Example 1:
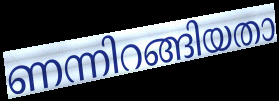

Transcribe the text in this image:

ണന്നിറങ്ങിയതാ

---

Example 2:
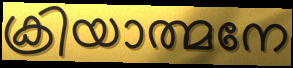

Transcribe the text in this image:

ക്രിയാത്മനേ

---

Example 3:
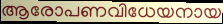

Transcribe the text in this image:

ആരോപണവിധേയനായ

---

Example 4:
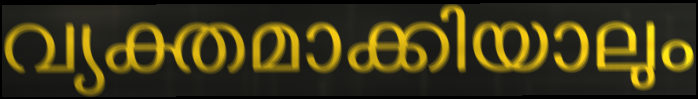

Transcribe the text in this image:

വ്യക്തമാക്കിയാലും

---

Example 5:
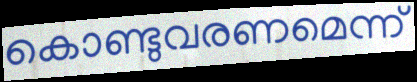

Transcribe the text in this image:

കൊണ്ടുവരണമെന്ന്